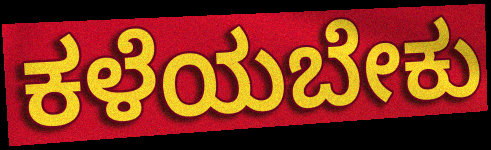
ಕಳೆಯಬೇಕು